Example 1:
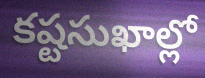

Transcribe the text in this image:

కష్టసుఖాల్లో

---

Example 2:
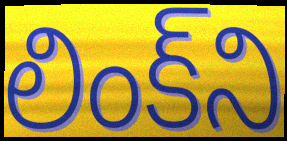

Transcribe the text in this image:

లింక్‌ని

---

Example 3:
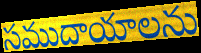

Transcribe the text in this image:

సముదాయాలను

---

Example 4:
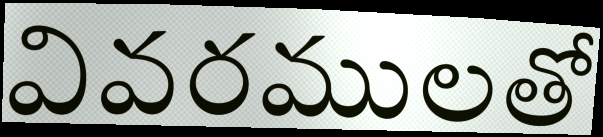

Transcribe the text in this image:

వివరములతో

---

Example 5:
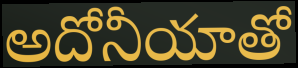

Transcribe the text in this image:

అదోనీయాతో